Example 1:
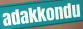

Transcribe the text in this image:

adakkondu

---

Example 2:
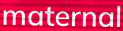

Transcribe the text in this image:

maternal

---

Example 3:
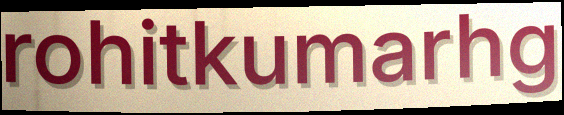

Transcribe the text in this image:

rohitkumarhg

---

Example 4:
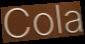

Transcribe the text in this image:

Cola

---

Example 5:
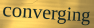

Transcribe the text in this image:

converging